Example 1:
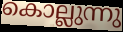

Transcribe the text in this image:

കൊല്ലുന്നു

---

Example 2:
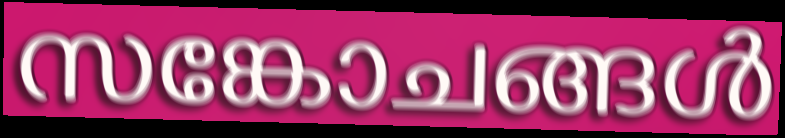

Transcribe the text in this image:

സങ്കോചങ്ങൾ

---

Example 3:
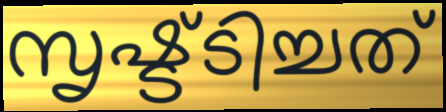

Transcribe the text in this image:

സൃഷ്ട്ടിച്ചത്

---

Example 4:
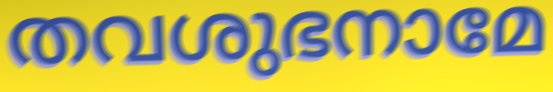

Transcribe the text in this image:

തവശുഭനാമേ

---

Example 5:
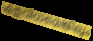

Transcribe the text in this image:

ഏതുവിധമെങ്കിലും